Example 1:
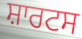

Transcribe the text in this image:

ਸ਼ਾਰਟਸ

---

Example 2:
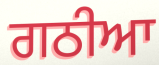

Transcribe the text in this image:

ਗਠੀਆ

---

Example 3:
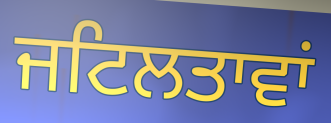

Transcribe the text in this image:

ਜਟਿਲਤਾਵਾਂ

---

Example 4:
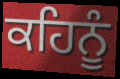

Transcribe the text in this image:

ਕਹਿਨੂੰ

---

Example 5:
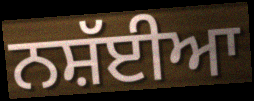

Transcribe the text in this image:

ਨਸ਼ੱਈਆ